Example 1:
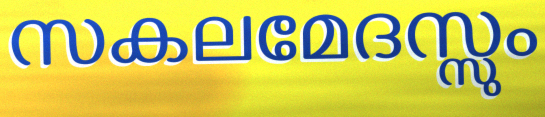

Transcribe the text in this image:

സകലമേദസ്സും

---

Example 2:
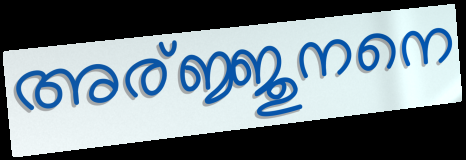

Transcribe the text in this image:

അര്ജ്ജുനനെ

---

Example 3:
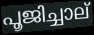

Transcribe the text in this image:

പൂജിച്ചാല്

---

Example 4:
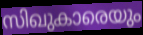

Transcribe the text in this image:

സിഖുകാരെയും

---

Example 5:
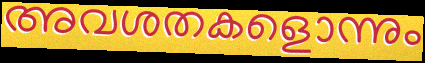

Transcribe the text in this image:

അവശതകളൊന്നും